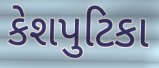
કેશપુટિકા